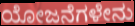
ಯೋಜನೆಗಳೇನು